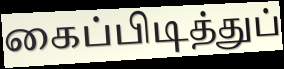
கைப்பிடித்துப்